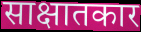
साक्षातकार